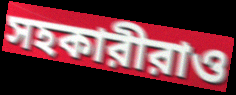
সহকারীরাও